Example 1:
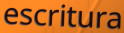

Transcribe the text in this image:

escritura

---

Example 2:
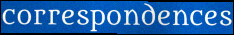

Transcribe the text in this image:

correspondences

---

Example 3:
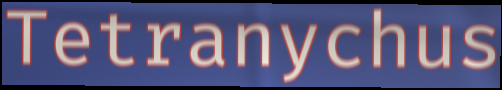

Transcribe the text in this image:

Tetranychus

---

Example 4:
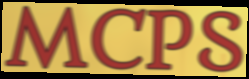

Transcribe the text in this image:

MCPS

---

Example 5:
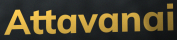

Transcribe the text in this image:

Attavanai